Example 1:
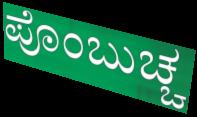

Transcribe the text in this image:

ಪೊಂಬುಚ್ಚ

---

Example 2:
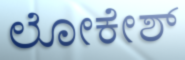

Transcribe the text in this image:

ಲೋಕೇಶ್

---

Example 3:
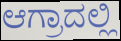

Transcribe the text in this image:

ಆಗ್ರಾದಲ್ಲಿ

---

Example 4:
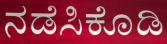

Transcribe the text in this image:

ನಡೆಸಿಕೊಡಿ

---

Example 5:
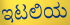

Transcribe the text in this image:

ಇಟಲಿಯ